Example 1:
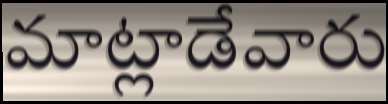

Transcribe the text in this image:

మాట్లాడేవారు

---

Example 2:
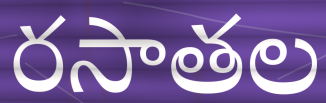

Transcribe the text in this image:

రసాతల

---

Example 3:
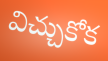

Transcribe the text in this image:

విచ్చుకోక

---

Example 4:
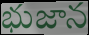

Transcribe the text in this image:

భుజాన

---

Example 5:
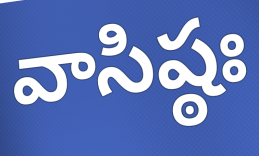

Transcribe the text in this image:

వాసిష్ఠః